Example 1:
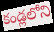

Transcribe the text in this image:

కండ్లలోని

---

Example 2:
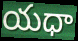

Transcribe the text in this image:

యధా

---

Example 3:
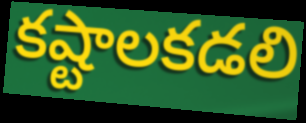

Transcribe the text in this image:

కష్టాలకడలి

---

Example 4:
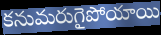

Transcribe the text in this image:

కనుమరుగైపోయాయి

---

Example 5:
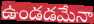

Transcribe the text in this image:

ఉండడమేనా